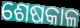
ଶେଷକାଳ